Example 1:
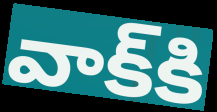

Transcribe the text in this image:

వాక్‌కి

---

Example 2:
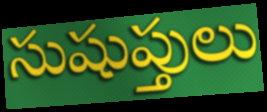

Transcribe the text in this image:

సుషుప్తులు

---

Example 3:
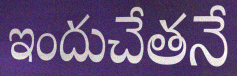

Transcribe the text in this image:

ఇందుచేతనే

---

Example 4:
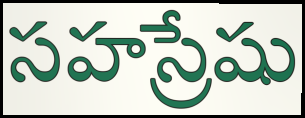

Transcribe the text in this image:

సహస్రేషు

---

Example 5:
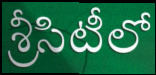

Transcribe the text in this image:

శ్రీసిటీలో